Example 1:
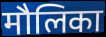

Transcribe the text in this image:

मौलिका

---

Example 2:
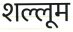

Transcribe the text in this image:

शल्लूम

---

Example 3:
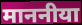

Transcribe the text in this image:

माननीया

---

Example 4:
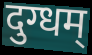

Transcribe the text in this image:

दुग्धम्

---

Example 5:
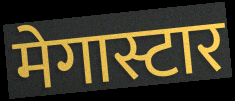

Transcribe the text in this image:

मेगास्टार